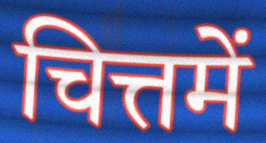
चित्तमें